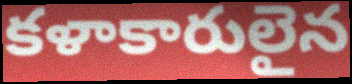
కళాకారులైన